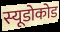
स्यूडोकोड